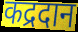
कद्रदान